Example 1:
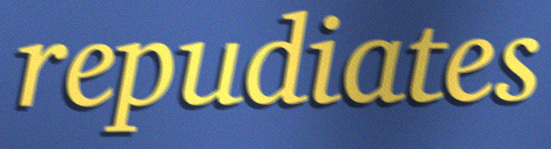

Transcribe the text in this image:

repudiates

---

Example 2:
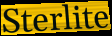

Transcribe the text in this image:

Sterlite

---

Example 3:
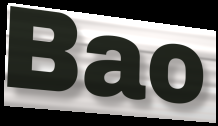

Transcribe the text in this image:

Bao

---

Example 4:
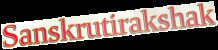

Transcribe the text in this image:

Sanskrutirakshak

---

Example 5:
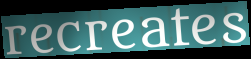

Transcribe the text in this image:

recreates